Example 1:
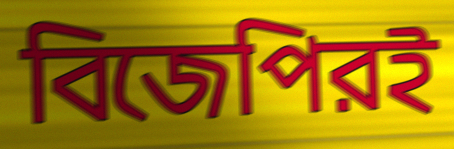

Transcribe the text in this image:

বিজেপিরই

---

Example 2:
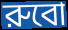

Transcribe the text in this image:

রুবো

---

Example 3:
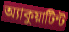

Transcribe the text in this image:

অ্যাকুয়াটিন্ট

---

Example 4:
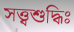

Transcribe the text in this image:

সত্ত্বশুদ্ধিঃ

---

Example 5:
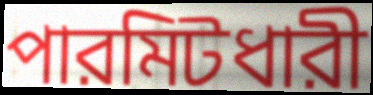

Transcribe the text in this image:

পারমিটধারী